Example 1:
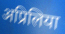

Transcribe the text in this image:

अप्रिलिया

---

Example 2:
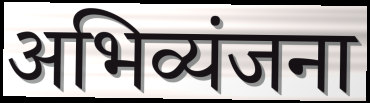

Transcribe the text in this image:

अभिव्यंजना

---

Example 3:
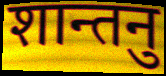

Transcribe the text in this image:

शान्तनु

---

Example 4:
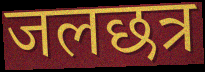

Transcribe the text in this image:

जलछत्र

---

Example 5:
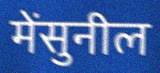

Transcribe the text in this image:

मेंसुनील